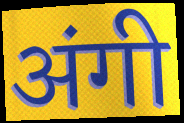
अंगी